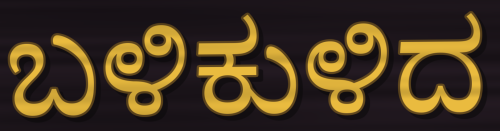
ಬಳಿಕುಳಿದ